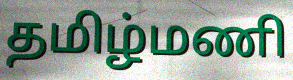
தமிழ்மணி